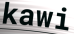
kawi